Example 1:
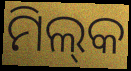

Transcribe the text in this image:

ମିଲ୍‌କ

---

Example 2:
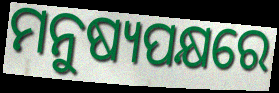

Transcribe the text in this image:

ମନୁଷ୍ୟପକ୍ଷରେ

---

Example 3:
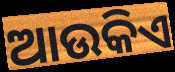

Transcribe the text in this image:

ଆଉକିଏ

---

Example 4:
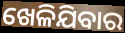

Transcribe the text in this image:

ଖେଳିଯିବାର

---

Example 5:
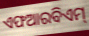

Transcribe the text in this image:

ଏଫଆରବିଏମ୍